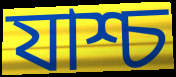
যাশ্চ